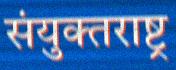
संयुक्तराष्ट्र